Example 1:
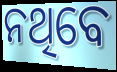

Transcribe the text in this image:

ନଥିବେ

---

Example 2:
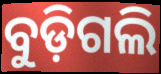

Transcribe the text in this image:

ବୁଡ଼ିଗଲି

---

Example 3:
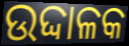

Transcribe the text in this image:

ଉଦ୍ଦାଳକ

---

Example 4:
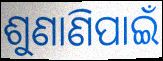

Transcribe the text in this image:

ଶୁଣାଣିପାଇଁ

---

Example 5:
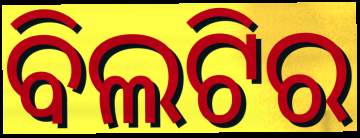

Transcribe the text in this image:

ବିଲଟିର